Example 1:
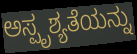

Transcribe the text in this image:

ಅಸ್ಪೃಶ್ಯತೆಯನ್ನು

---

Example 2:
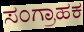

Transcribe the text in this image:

ಸಂಗ್ರಾಹಕ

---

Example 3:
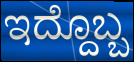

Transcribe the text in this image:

ಇದ್ದೊಬ್ಬ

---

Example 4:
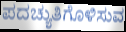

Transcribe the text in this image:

ಪದಚ್ಯುತಿಗೊಳಿಸುವ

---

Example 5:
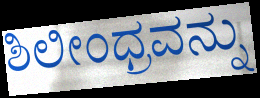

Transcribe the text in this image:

ಶಿಲೀಂಧ್ರವನ್ನು